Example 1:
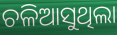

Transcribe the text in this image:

ଚଳିଆସୁଥିଲା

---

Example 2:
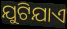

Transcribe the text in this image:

ଯୁଟିଯାଏ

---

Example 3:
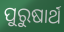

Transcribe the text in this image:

ପୁରୁଷାର୍ଥ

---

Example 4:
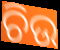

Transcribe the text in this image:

ଚିଉ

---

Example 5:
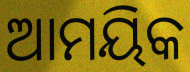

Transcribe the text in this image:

ଆମୟିକ